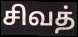
சிவத்